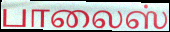
பாலைஸ்